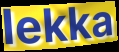
lekka